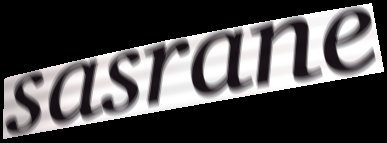
sasrane